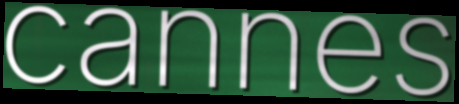
cannes